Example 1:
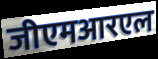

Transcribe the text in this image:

जीएमआरएल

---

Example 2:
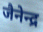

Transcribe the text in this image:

जैनेन्द्र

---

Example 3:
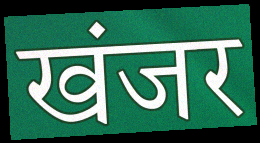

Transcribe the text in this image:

खंजर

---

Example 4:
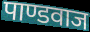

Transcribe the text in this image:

पाण्डवाज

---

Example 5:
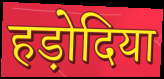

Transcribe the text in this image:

हड़ोदिया